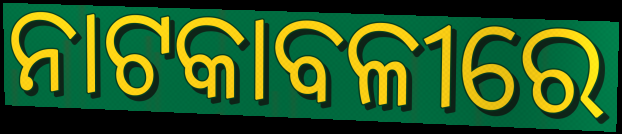
ନାଟକାବଳୀରେ